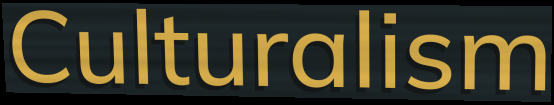
Culturalism